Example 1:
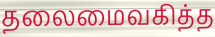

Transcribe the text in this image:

தலைமைவகித்த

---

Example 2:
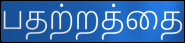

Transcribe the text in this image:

பதற்றத்தை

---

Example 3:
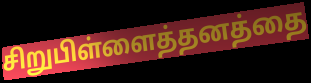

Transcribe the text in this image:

சிறுபிள்ளைத்தனத்தை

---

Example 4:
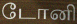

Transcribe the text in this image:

டோனி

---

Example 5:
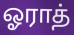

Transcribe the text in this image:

ஓராத்